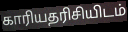
காரியதரிசியிடம்